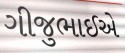
ગીજુભાઈએ